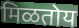
मिळतोय